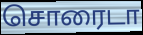
சொரைடா